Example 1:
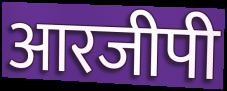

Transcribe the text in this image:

आरजीपी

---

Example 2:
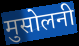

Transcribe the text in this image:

मुसोलनी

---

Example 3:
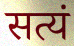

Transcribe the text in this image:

सत्यं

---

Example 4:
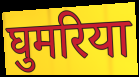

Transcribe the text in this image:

घुमरिया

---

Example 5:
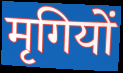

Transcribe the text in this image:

मृगियों